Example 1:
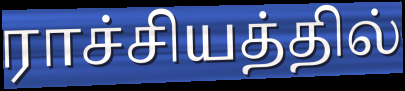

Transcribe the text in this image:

ராச்சியத்தில்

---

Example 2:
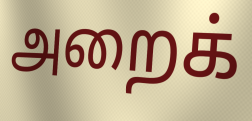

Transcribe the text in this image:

அறைக்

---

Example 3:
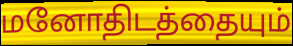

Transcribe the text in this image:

மனோதிடத்தையும்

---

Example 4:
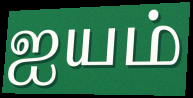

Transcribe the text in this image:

ஐயம்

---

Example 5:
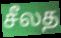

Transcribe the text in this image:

சீலத